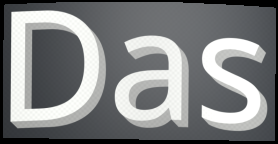
Das